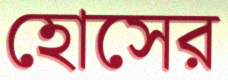
হোসের